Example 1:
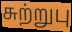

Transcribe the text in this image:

சுற்றுபு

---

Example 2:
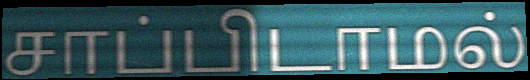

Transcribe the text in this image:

சாப்பிடாமல்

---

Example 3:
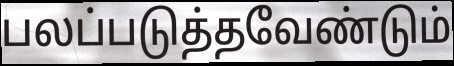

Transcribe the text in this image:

பலப்படுத்தவேண்டும்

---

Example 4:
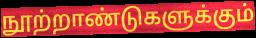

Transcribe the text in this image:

நூற்றாண்டுகளுக்கும்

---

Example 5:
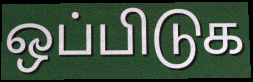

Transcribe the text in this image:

ஒப்பிடுக